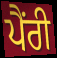
ਪੈਂਰੀ